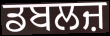
ਡਬਲਜ਼